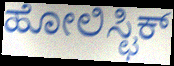
ಹೋಲಿಸ್ಟಿಕ್